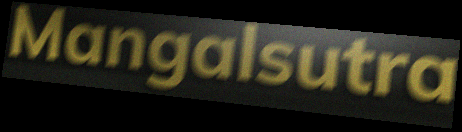
Mangalsutra